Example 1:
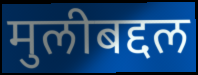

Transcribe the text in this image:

मुलीबद्दल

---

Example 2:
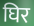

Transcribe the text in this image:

घिर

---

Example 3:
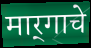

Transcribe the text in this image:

मार्गाचे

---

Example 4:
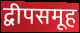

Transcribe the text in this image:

द्वीपसमूह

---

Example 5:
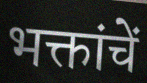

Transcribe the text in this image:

भक्तांचें